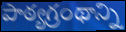
పాఠ్యగ్రంథాన్ని